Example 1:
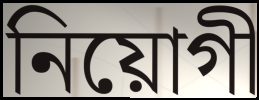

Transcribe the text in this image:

নিয়োগী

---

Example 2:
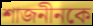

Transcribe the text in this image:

শাজনীনকে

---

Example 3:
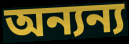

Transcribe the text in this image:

অন্যন্য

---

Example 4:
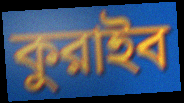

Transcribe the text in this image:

কুরাইব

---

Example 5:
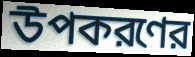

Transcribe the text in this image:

উপকরণের